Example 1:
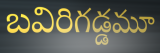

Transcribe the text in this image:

బవిరిగడ్డమూ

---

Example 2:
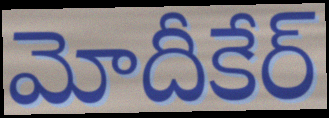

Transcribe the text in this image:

మోదీకేర్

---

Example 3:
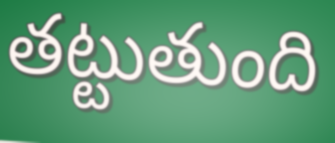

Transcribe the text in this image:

తట్టుతుంది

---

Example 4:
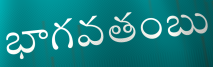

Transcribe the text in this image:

భాగవతంబు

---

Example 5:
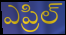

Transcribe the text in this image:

ఎప్రిల్